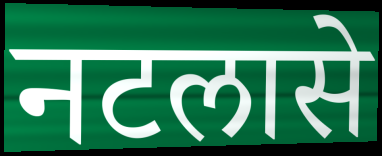
नटलासे